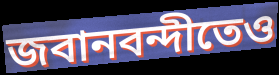
জবানবন্দীতেও